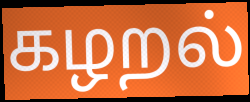
கழறல்